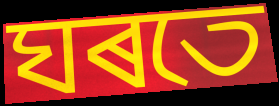
ঘৰতে